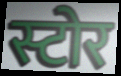
स्‍टोर